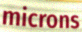
microns